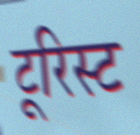
टूरिस्ट